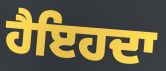
ਹੈਇਹਦਾ